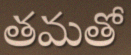
తమతో